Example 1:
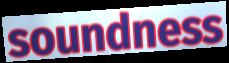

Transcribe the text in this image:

soundness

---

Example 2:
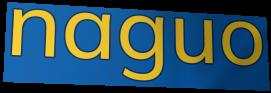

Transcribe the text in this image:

naguo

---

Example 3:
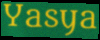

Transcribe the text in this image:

Yasya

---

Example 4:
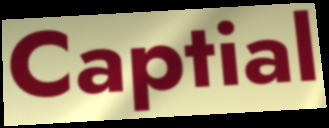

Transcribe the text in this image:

Captial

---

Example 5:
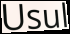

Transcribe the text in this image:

Usul